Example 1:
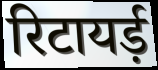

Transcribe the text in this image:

रिटायर्ड़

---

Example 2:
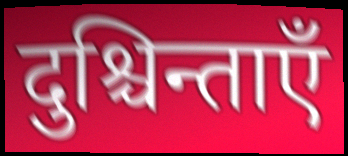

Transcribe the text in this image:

दुश्चिन्ताएँ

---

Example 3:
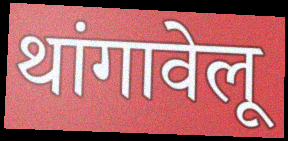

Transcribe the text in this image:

थांगावेलू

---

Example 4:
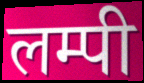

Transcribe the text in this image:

लम्पी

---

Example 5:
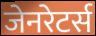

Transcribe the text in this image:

जेनरेटर्स